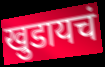
खुडायचं